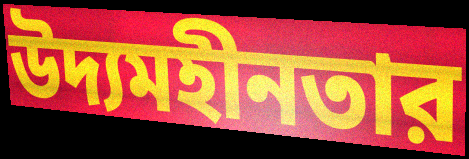
উদ্যমহীনতার